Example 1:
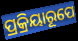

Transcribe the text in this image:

ପ୍ରକ୍ରିୟାରୂପେ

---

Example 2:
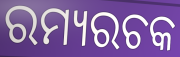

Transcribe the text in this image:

ରମ୍ୟରଚକ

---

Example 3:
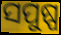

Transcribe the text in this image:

ସପୁଷ୍ପ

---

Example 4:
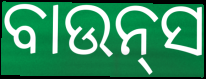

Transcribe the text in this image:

ବାଉନ୍‍ସ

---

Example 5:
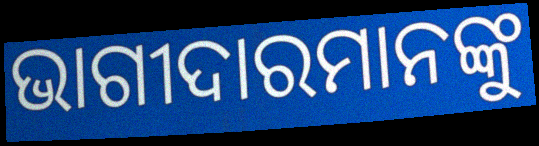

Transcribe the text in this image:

ଭାଗୀଦାରମାନଙ୍କୁ